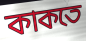
কাকতে